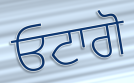
ਓਟਾਗੋ